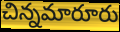
చిన్నమారూరు